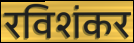
रविशंकर